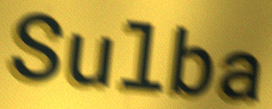
Sulba